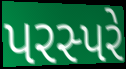
પરસ્પરે